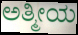
ಅತ್ಮೀಯ